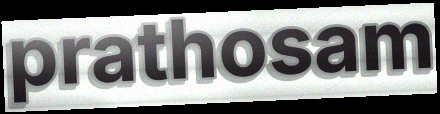
prathosam